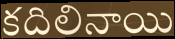
కదిలినాయి